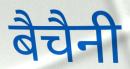
बैचैनी